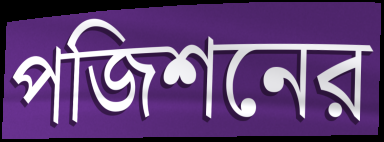
পজিশনের